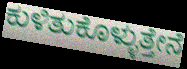
ಕುಳಿತುಕೊಳ್ಳುತ್ತೇನೆ